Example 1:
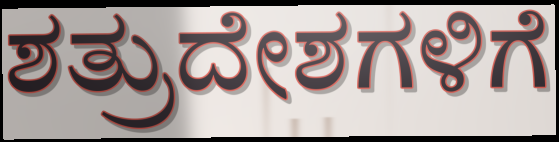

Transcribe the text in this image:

ಶತ್ರುದೇಶಗಳಿಗೆ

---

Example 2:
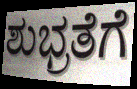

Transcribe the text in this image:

ಶುಭ್ರತೆಗೆ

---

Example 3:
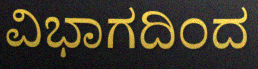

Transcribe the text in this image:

ವಿಭಾಗದಿಂದ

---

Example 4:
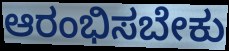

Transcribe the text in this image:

ಆರಂಭಿಸಬೇಕು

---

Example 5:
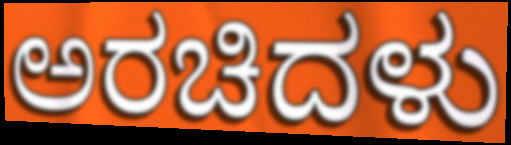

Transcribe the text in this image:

ಅರಚಿದಳು